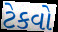
ટેકવો